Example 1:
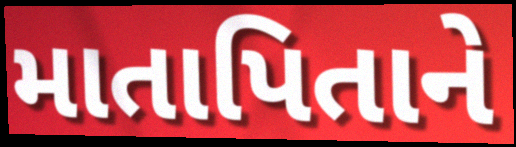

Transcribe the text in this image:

માતાપિતાને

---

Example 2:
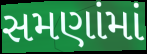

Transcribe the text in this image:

સમણાંમાં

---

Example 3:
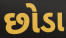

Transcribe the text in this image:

છોડા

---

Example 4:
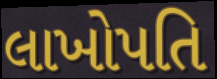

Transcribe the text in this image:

લાખોપતિ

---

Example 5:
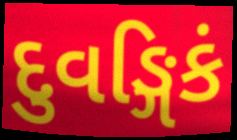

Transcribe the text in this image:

દુવઙ્ગિકં